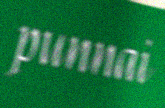
punnai